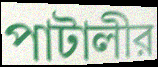
পাটালীর